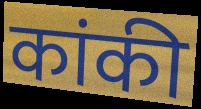
कांकी